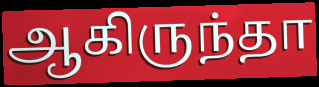
ஆகிருந்தா